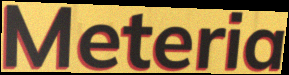
Meteria